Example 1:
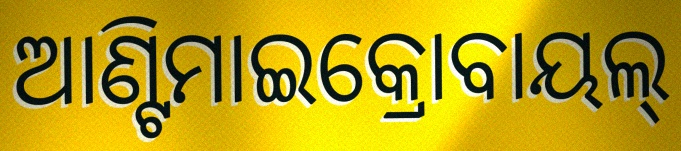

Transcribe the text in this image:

ଆଣ୍ଟିମାଇକ୍ରୋବାୟଲ୍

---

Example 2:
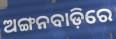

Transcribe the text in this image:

ଅଙ୍ଗନବାଡ଼ିରେ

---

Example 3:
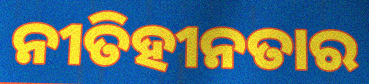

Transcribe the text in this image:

ନୀତିହୀନତାର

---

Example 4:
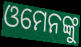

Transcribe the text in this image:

ଓମେନଙ୍କୁ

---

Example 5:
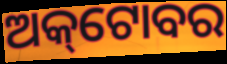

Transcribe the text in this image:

ଅକ୍‌ଟୋବର